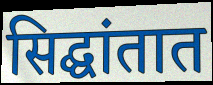
सिद्घांतात